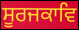
ਸੂਰਜਕਾਵਿ